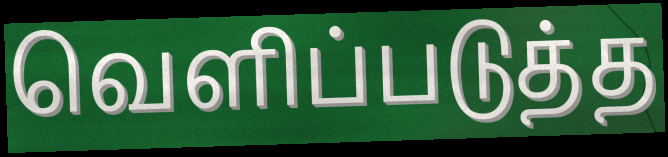
வெளிப்படுத்த